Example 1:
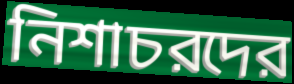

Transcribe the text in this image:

নিশাচরদের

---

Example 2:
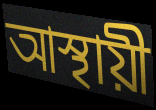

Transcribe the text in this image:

আস্থায়ী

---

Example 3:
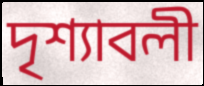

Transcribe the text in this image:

দৃশ্যাবলী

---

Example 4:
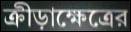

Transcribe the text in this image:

ক্রীড়াক্ষেত্রের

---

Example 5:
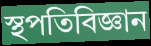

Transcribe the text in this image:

স্থপতিবিজ্ঞান